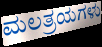
ಮಲತ್ರಯಗಳು